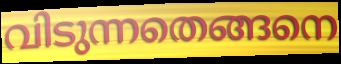
വിടുന്നതെങ്ങനെ